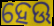
ହେଊ